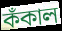
কঁকাল